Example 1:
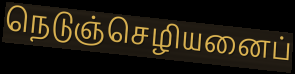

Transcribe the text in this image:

நெடுஞ்செழியனைப்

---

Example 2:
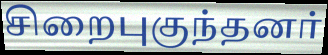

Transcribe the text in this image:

சிறைபுகுந்தனர்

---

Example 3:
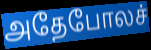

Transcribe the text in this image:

அதேபோலச்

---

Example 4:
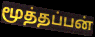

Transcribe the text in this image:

மூத்தப்பன்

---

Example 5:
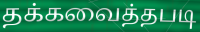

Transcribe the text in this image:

தக்கவைத்தபடி